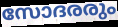
സോദരരും